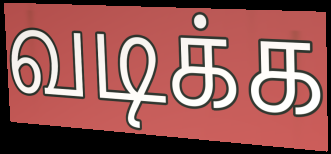
வடிக்க